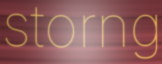
storng